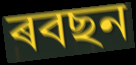
ৰবছন